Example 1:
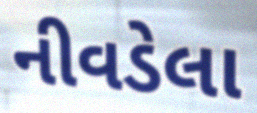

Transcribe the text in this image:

નીવડેલા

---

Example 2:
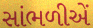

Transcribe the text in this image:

સાંભળીએં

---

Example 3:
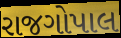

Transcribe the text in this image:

રાજગોપાલ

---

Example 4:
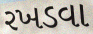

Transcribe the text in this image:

રખડવા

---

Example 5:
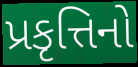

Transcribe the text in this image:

પ્રકૃત્તિનો